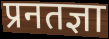
प्रनतज्ञा